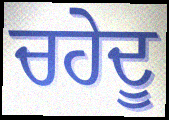
ਚਹੇਦੂ